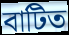
বাটিত